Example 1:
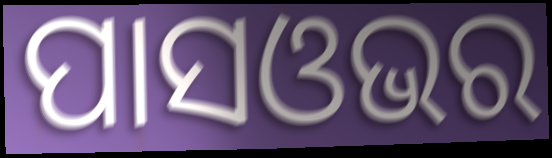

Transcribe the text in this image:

ପାସଓଭର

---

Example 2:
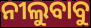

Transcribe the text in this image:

ନୀଲୁବାବୁ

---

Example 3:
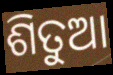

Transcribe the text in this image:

ଶିତୁଆ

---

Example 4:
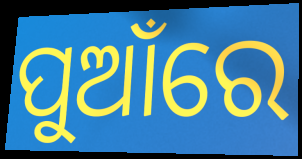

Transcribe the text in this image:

ପୁଆଁରେ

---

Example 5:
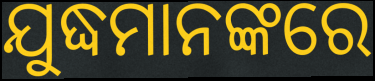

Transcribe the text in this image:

ଯୁଦ୍ଧମାନଙ୍କରେ